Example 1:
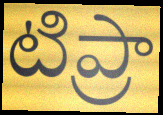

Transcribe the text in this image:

టిప్రా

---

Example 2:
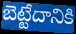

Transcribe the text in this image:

బెట్టేదానికి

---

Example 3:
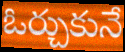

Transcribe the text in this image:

ఓర్చుకునే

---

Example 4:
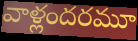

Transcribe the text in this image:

వాళ్లందరమూ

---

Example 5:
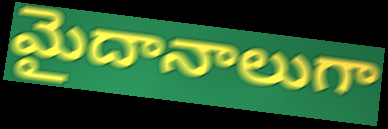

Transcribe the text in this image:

మైదానాలుగా